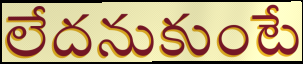
లేదనుకుంటే